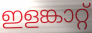
ഇളങ്കാറ്റ്